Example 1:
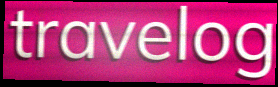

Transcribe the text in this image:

travelog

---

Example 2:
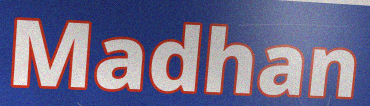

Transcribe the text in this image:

Madhan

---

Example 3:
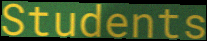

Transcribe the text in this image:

Students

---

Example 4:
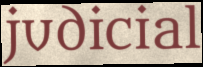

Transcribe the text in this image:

judicial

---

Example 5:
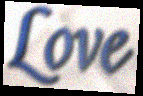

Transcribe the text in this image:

Love